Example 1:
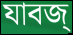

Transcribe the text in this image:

যাবজ্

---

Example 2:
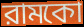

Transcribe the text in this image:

রামকো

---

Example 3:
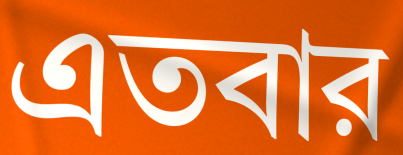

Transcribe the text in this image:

এতবার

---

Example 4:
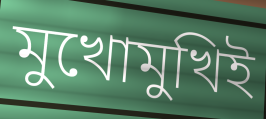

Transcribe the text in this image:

মুখোমুখিই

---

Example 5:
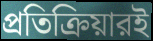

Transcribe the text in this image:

প্রতিক্রিয়ারই